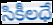
సికీలధే